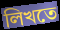
লিখতে